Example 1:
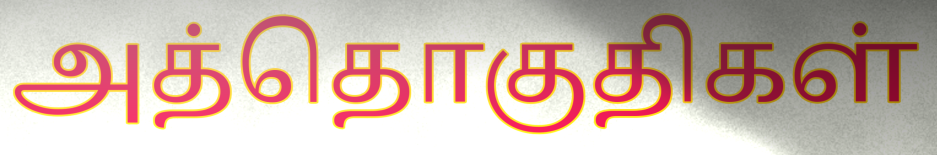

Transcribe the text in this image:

அத்தொகுதிகள்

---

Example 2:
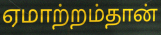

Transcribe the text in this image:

ஏமாற்றம்தான்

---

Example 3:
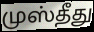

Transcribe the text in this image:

முஸ்தீது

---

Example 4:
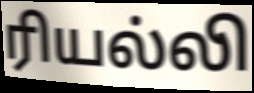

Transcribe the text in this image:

ரியல்லி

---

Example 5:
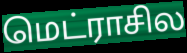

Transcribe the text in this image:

மெட்ராசில